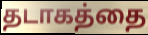
தடாகத்தை